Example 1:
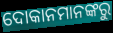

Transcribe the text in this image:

ଦୋକାନମାନଙ୍କରୁ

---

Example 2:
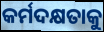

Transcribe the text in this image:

କର୍ମଦକ୍ଷତାକୁ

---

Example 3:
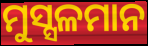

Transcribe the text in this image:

ମୁସ୍ସଳମାନ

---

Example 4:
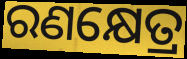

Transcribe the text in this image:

ରଣକ୍ଷେତ୍ର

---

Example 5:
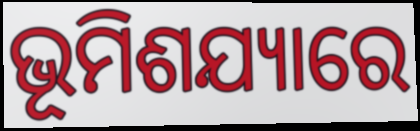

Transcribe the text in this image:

ଭୂମିଶଯ୍ୟାରେ